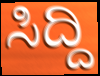
ಸಿದ್ದಿ